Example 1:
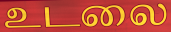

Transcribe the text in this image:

உடலை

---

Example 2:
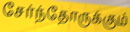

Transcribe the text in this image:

சேர்ந்தோருக்கும்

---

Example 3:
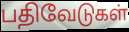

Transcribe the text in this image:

பதிவேடுகள்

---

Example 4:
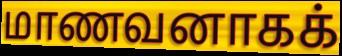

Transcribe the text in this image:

மாணவனாகக்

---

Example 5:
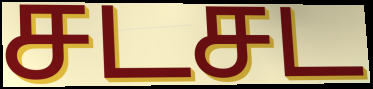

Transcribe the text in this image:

சடசட